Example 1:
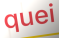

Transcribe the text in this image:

quei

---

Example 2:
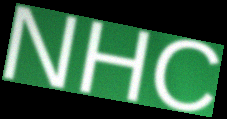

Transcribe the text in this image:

NHC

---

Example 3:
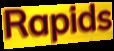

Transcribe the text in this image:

Rapids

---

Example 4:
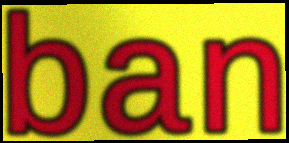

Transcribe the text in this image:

ban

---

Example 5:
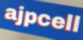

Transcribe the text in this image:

ajpcell